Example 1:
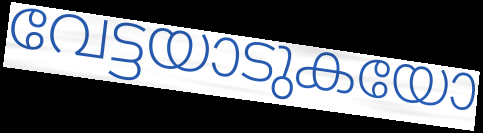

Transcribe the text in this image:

വേട്ടയാടുകയോ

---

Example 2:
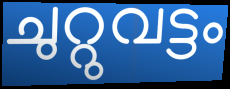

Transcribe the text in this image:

ചുറ്റുവട്ടം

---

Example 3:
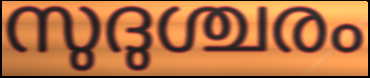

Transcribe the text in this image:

സുദുശ്ചരം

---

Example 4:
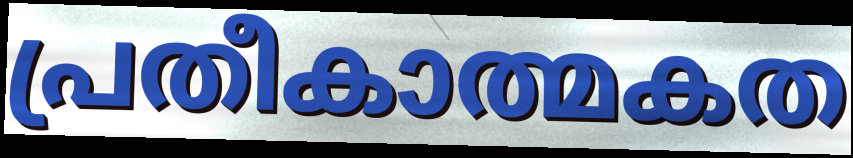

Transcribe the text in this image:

പ്രതീകാത്മകത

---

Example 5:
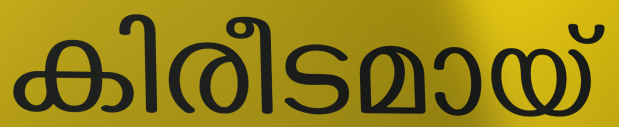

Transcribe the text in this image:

കിരീടമായ്